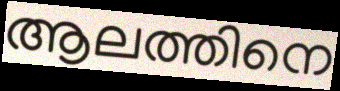
ആലത്തിനെ